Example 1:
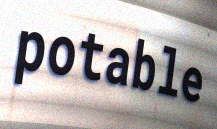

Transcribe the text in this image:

potable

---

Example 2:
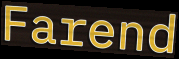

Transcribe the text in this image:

Farend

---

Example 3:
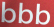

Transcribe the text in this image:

bbb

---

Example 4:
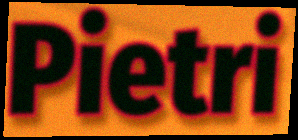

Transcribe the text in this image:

Pietri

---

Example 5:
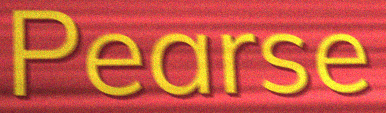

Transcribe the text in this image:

Pearse